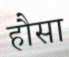
हौसा